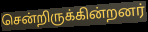
சென்றிருக்கின்றனர்